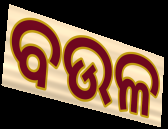
ବଉଳ